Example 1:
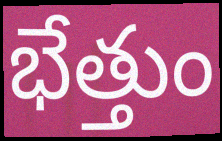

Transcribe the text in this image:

భేత్తుం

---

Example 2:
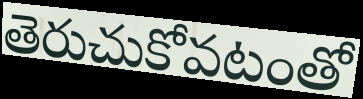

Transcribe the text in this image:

తెరుచుకోవటంతో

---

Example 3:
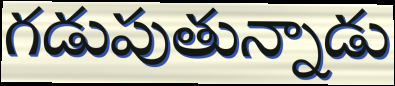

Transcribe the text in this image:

గడుపుతున్నాడు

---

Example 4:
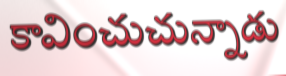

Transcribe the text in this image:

కావించుచున్నాడు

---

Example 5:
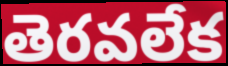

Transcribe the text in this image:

తెరవలేక